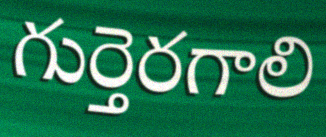
గుర్తెరగాలి